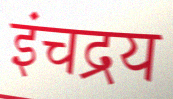
इंचद्रय